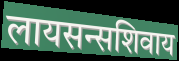
लायसन्सशिवाय